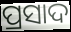
ପ୍ରସାଦ